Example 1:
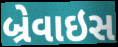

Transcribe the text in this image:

બ્રેવાઇસ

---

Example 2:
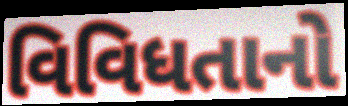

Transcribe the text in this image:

વિવિધતાનો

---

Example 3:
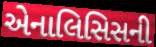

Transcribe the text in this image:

એનાલિસિસની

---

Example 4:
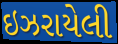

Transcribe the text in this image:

ઇઝરાયેલી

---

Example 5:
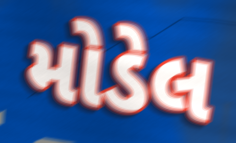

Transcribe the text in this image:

મોડેલ